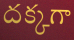
దక్కగా